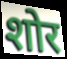
शोर